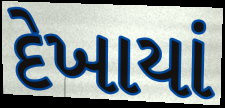
દેખાયાં